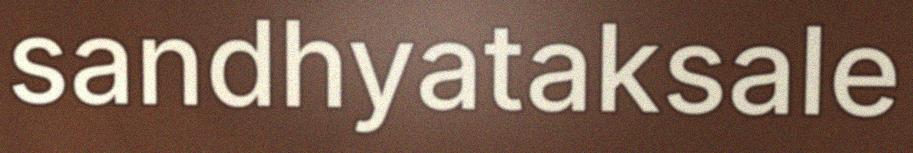
sandhyataksale